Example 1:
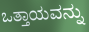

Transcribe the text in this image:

ಒತ್ತಾಯವನ್ನು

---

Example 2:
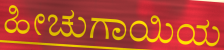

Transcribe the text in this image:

ಹೀಚುಗಾಯಿಯ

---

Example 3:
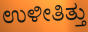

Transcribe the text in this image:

ಉಳೀತಿತ್ತು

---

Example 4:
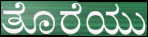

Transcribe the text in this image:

ತೊರೆಯು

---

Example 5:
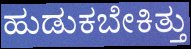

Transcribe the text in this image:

ಹುಡುಕಬೇಕಿತ್ತು